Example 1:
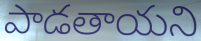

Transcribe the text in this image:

పాడతాయని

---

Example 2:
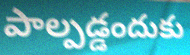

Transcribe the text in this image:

పాల్పడ్డందుకు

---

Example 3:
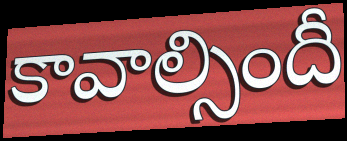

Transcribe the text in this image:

కావాల్సిందీ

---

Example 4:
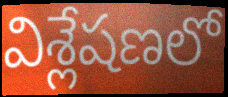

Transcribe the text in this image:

విశ్లేషణలో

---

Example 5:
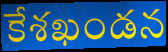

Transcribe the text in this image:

కేశఖండన